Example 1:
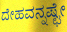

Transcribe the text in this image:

ದೇಹವನ್ನಷ್ಟೇ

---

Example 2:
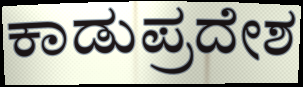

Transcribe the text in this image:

ಕಾಡುಪ್ರದೇಶ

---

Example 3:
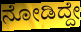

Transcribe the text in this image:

ನೋಡಿದ್ದೇ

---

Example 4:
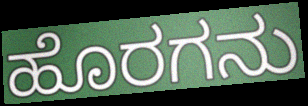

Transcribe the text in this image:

ಹೊರಗನು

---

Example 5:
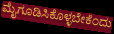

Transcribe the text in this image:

ಮೈಗೂಡಿಸಿಕೊಳ್ಳಬೇಕೆಂದು